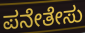
ಪನೇತೇಸು